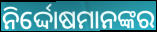
ନିର୍ଦ୍ଦୋଷମାନଙ୍କର